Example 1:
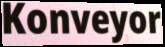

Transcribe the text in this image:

Konveyor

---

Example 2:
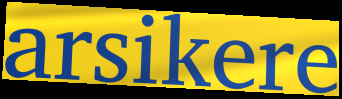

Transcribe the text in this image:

arsikere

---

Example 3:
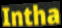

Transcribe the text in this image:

Intha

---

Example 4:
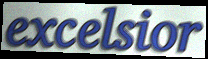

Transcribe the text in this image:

excelsior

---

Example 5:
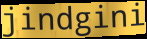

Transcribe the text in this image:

jindgini